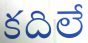
కదిలే